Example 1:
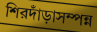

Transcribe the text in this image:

শিরদাঁড়াসম্পন্ন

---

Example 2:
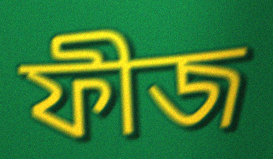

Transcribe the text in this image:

ফীজ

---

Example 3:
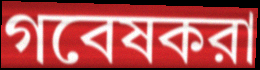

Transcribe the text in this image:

গবেষকরা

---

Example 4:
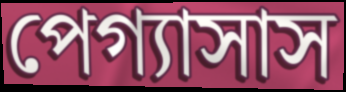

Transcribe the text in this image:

পেগ্যাসাস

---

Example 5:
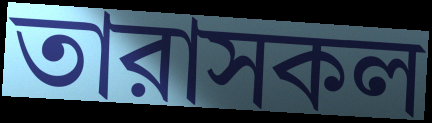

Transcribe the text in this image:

তারাসকল